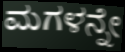
ಮಗಳನ್ನೇ